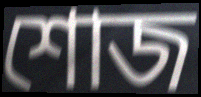
শোজ